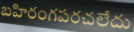
బహిరంగపరచలేదు